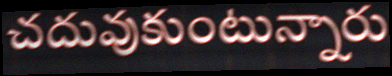
చదువుకుంటున్నారు